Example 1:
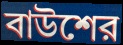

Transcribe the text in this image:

বাউশের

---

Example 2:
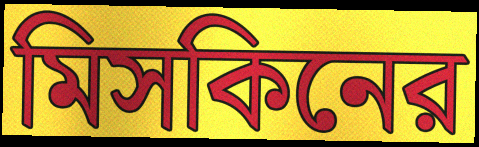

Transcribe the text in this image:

মিসকিনের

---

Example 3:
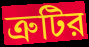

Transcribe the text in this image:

ত্রুটির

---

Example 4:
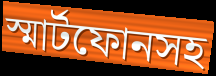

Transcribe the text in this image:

স্মার্টফোনসহ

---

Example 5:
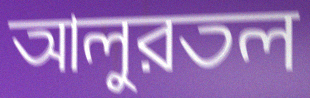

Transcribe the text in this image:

আলুরতল